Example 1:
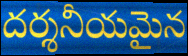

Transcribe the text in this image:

దర్శనీయమైన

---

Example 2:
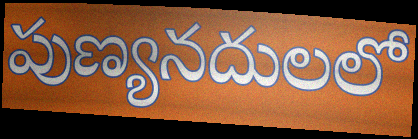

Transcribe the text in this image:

పుణ్యనదులలో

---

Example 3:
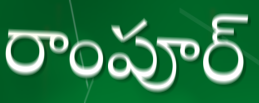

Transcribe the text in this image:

రాంపూర్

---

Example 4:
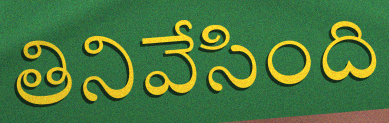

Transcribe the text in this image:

తినివేసింది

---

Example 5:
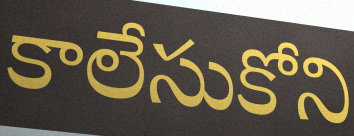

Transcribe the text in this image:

కాలేసుకోని